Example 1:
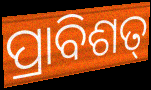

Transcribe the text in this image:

ପ୍ରାବିଶତ୍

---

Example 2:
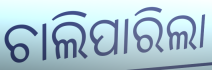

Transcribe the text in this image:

ଚାଲିପାରିଲା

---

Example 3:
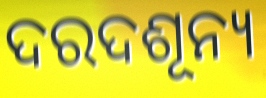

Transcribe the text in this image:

ଦରଦଶୂନ୍ୟ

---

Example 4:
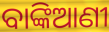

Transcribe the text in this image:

ବାଙ୍କିଆଣୀ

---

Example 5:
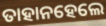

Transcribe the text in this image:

ତାହାନହେଲେ